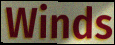
Winds